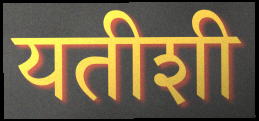
यतीशी